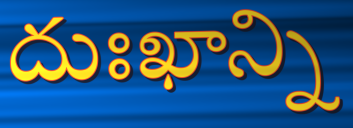
దుఃఖాన్ని